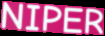
NIPER